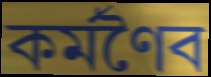
কর্মণৈব